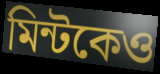
মিন্টকেও